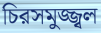
চিরসমুজ্জ্বল